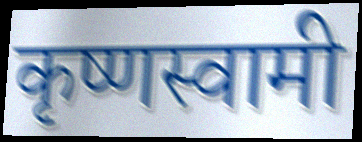
कृष्णस्वामी